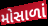
મોસાળાં